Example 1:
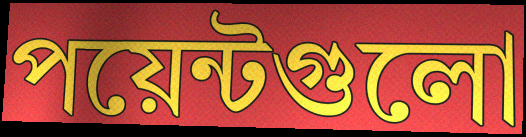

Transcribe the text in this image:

পয়েন্টগুলো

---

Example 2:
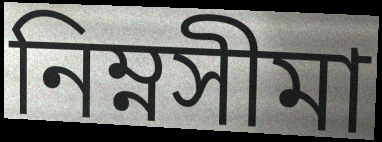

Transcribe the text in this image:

নিম্নসীমা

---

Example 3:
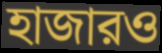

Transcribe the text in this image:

হাজারও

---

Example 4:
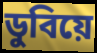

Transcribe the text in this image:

ডুবিয়ে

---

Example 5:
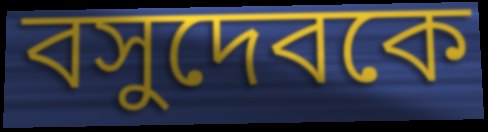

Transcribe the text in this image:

বসুদেবকে